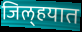
जिल्हयात